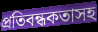
প্রতিবন্ধকতাসহ